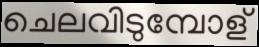
ചെലവിടുമ്പോള്